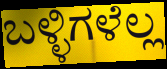
ಬಳ್ಳಿಗಳೆಲ್ಲ